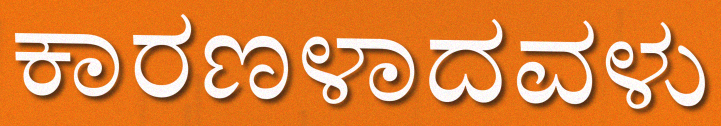
ಕಾರಣಳಾದವಳು